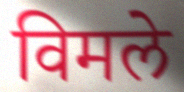
विमले